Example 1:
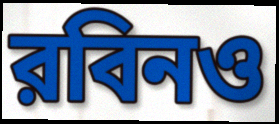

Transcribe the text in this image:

রবিনও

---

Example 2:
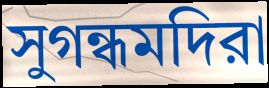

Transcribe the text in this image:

সুগন্ধমদিরা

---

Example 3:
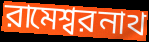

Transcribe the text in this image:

রামেশ্বরনাথ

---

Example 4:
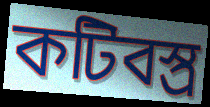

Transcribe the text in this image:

কটিবস্ত্র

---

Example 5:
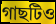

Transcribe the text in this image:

গাছটিও